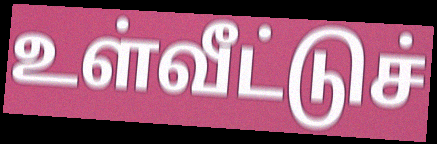
உள்வீட்டுச்